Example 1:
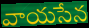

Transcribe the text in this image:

వాయసేన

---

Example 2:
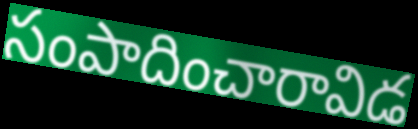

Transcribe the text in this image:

సంపాదించారావిడ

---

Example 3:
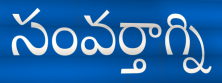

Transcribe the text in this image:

సంవర్తాగ్ని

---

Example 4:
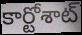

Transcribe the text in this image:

కార్టోశాట్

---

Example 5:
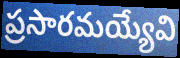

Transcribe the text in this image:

ప్రసారమయ్యేవి